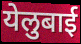
येलुबाई